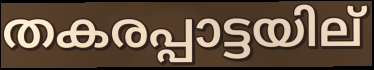
തകരപ്പാട്ടയില്